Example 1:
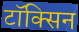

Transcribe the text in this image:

टॉक्सिन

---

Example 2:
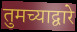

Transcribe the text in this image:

तुमच्याद्वारे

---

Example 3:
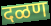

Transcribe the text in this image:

दळण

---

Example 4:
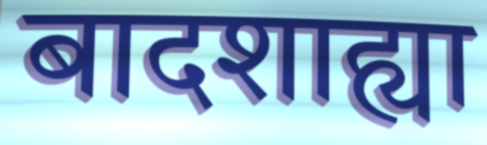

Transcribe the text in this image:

बादशाह्या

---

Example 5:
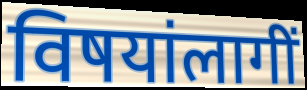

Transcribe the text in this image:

विषयांलागीं